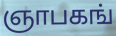
ஞாபகங்